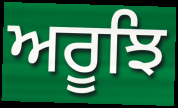
ਅਰੂਝਿ